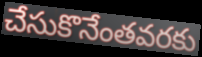
చేసుకొనేంతవరకు